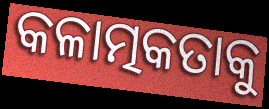
କଳାତ୍ମକତାକୁ